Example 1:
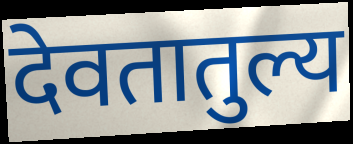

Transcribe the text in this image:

देवतातुल्य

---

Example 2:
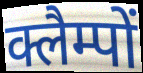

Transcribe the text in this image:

क्लैम्पों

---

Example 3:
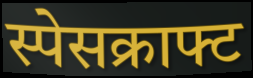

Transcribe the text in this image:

स्‍पेसक्राफ्ट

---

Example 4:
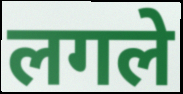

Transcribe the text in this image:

लगले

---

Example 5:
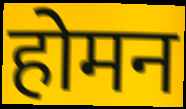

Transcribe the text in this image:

होमन